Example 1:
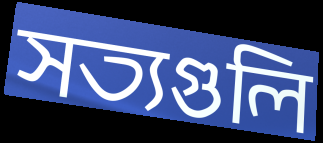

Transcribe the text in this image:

সত্যগুলি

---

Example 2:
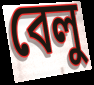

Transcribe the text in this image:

বেলু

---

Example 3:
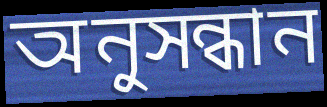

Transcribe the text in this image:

অনুসন্ধান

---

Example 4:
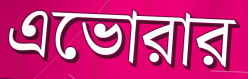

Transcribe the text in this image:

এভোরার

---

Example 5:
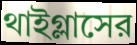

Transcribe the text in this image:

থাইগ্লাসের